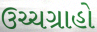
ઉચ્ચગ્રાહો